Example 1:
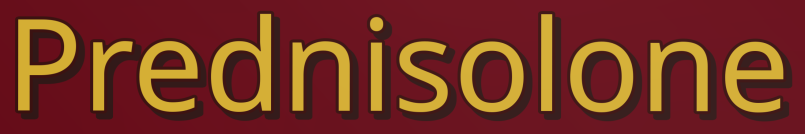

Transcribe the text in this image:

Prednisolone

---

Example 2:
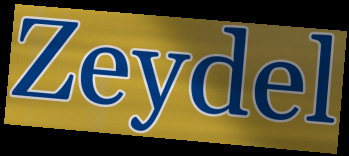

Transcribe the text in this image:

Zeydel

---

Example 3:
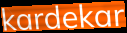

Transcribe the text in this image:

kardekar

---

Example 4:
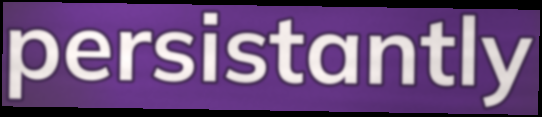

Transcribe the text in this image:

persistantly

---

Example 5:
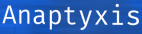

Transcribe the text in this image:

Anaptyxis